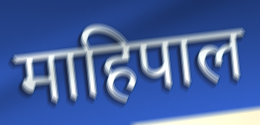
माहिपाल